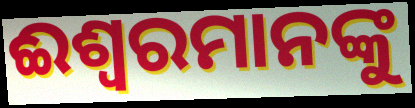
ଈଶ୍ୱରମାନଙ୍କୁ